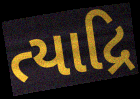
ત્યાદ્રિ